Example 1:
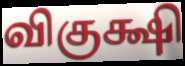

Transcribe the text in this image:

விகுக்ஷி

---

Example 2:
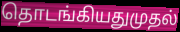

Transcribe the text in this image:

தொடங்கியதுமுதல்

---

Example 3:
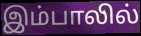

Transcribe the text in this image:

இம்பாலில்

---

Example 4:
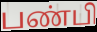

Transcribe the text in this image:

பண்பி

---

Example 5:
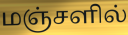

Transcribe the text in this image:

மஞ்சளில்